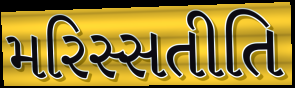
મરિસ્સતીતિ